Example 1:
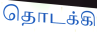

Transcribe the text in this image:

தொடக்கி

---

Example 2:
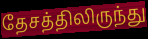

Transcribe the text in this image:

தேசத்திலிருந்து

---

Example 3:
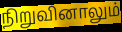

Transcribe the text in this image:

நிறுவினாலும்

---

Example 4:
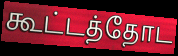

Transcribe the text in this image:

கூட்டத்தோட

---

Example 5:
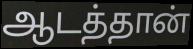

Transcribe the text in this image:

ஆடத்தான்